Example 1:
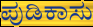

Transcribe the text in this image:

ಪುಡಿಕಾಸು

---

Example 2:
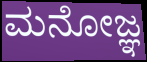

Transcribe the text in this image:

ಮನೋಜ್ಞ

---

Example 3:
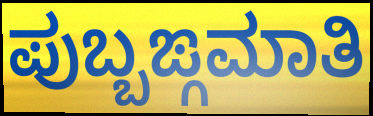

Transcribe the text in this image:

ಪುಬ್ಬಙ್ಗಮಾತಿ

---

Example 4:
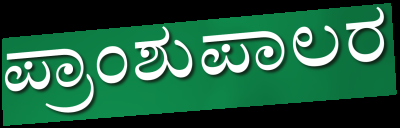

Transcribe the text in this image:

ಪ್ರಾಂಶುಪಾಲರ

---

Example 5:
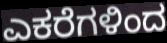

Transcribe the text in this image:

ಎಕರೆಗಳಿಂದ